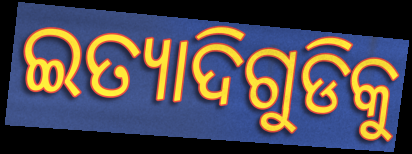
ଇତ୍ୟାଦିଗୁଡିକୁ